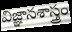
విజ్ఞానశాస్త్రం